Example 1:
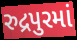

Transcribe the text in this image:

રુદ્રપુરમાં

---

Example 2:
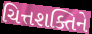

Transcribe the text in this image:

ચિત્તશક્તિને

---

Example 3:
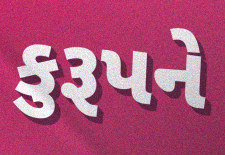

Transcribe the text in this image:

કુરૂપને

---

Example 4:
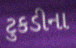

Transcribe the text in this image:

ટુકડીના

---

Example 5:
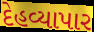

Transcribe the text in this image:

દેહવ્યાપાર